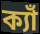
ক্যাঁ